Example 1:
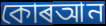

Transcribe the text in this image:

কোৰআন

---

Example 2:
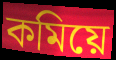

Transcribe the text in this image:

কমিয়ে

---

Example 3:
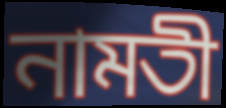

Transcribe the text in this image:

নামতী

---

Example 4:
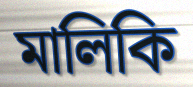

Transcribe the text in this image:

মালিকি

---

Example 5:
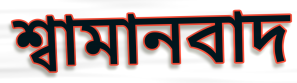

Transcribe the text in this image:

শ্বামানবাদ